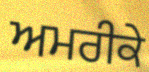
ਅਮਰੀਕੇ